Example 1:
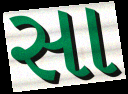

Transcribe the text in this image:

સા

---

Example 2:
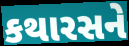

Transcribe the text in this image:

કથારસને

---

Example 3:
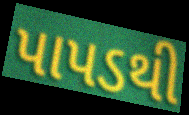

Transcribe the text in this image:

પાપડથી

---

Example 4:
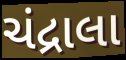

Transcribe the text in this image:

ચંદ્રાલા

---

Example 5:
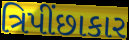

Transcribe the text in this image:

ત્રિપીંછાકાર